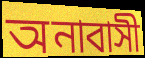
অনাবাসী